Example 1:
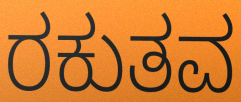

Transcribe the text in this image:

ರಕುತವ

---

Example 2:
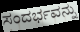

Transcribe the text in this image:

ಸಂದರ್ಭವನ್ನು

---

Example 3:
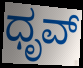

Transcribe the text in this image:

ಧೃವ್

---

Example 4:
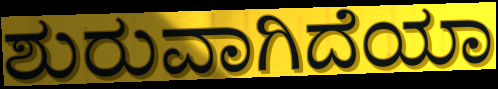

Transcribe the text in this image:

ಶುರುವಾಗಿದೆಯಾ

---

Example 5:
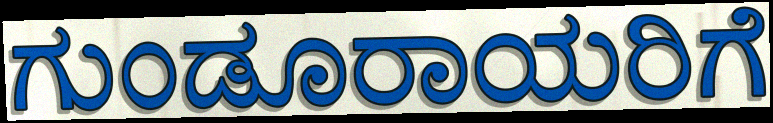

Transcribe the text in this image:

ಗುಂಡೂರಾಯರಿಗೆ